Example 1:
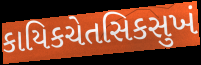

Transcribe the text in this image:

કાયિકચેતસિકસુખં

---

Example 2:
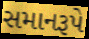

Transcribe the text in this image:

સમાનરૂપે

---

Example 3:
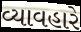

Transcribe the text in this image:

વ્યાવહારે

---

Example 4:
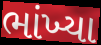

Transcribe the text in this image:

ભાંખ્યા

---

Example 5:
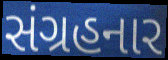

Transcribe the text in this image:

સંગ્રહનાર